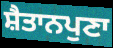
ਸ਼ੈਤਾਨਪੁਣਾ